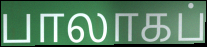
பாலாகப்